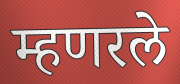
म्हणरले